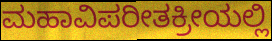
ಮಹಾವಿಪರೀತಕ್ರೀಯಲ್ಲಿ